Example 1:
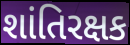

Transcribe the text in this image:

શાંતિરક્ષક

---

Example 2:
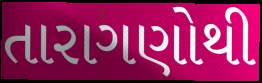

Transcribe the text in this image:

તારાગણોથી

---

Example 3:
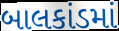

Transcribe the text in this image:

બાલકાંડમાં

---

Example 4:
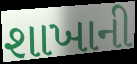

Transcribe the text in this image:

શાખાની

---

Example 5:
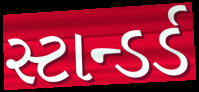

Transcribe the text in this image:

સ્ટાન્ડર્ડ